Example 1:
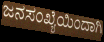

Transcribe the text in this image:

ಜನಸಂಖ್ಯೆಯಿಂದಾಗಿ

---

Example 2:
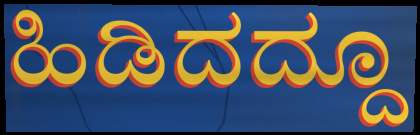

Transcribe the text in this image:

ಹಿಡಿದದ್ದೂ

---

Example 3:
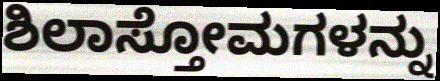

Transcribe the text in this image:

ಶಿಲಾಸ್ತೋಮಗಳನ್ನು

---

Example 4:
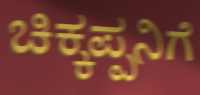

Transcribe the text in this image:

ಚಿಕ್ಕಪ್ಪನಿಗೆ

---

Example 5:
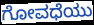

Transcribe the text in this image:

ಗೋವಧೆಯು